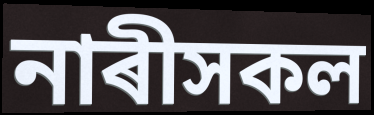
নাৰীসকল